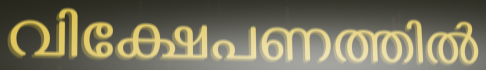
വിക്ഷേപണത്തിൽ